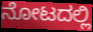
ನೋಟದಲ್ಲಿ